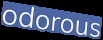
odorous